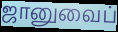
ஜானுவைப்